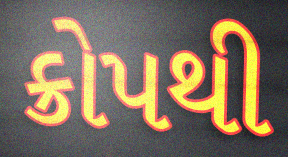
ક્રોપથી